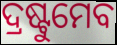
ଦ୍ରଷ୍ଟୁମେବ